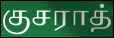
குசராத்